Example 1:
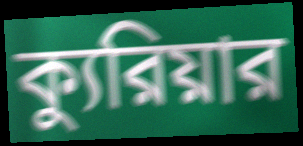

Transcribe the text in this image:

ক্যুরিয়ার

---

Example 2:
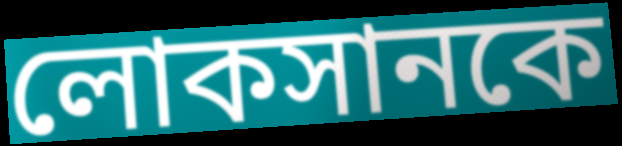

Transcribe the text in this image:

লোকসানকে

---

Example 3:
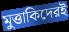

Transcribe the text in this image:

মুত্তাকিদেরই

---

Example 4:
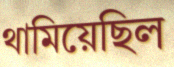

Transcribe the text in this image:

থামিয়েছিল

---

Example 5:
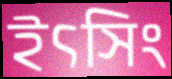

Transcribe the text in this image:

ইৎসিং